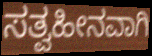
ಸತ್ವಹೀನವಾಗಿ